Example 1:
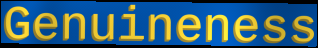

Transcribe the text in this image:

Genuineness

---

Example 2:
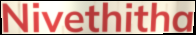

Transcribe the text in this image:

Nivethitha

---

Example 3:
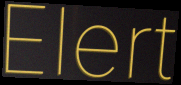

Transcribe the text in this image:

Elert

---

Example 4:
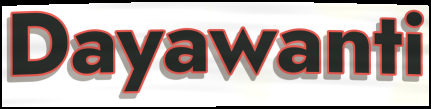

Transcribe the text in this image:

Dayawanti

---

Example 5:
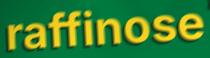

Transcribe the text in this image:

raffinose